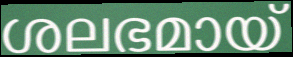
ശലഭമായ്